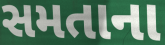
સમતાના